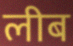
लीब